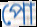
পো